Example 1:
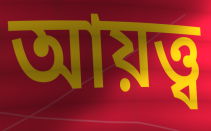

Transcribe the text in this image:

আয়ত্ত্ব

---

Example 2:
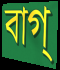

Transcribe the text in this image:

বাগ্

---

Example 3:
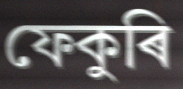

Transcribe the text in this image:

ফেকুৰি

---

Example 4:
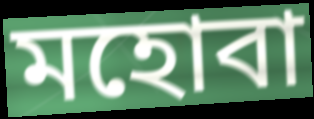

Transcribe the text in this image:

মহোবা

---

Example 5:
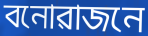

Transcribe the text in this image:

বনোৱাজনে